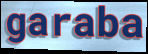
garaba